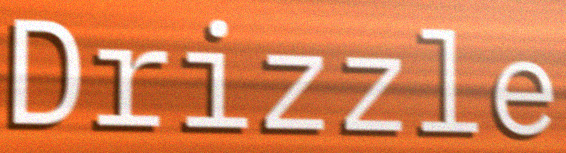
Drizzle